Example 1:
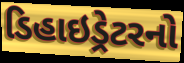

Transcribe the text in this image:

ડિહાઇડ્રેટરનો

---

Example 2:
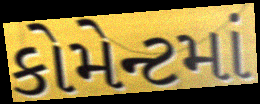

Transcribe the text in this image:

કોમેન્ટમાં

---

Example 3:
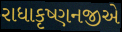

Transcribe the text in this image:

રાધાકૃષ્ણનજીએ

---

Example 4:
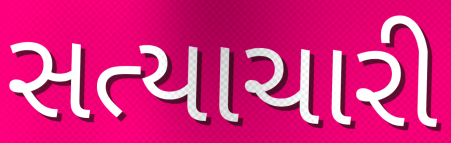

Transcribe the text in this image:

સત્યાચારી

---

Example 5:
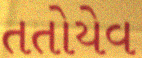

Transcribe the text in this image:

તતોયેવ